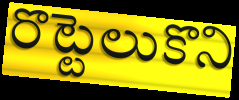
రొట్టెలుకొని